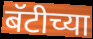
बॅटीच्या